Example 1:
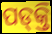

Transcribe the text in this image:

ପଡ୍‌କ୍ତି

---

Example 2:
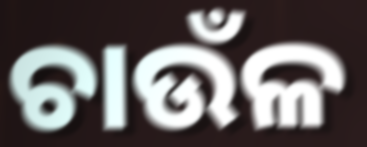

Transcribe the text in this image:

ଚାଉଁଳ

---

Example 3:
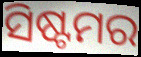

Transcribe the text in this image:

ସିଷ୍ଟମର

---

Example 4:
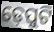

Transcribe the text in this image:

ଡ଼େପୁଟି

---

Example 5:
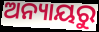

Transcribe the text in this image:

ଅନ୍ୟାୟରୁ